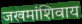
जखमांशिवाय